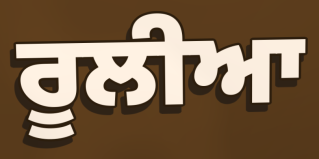
ਰੂਲੀਆ